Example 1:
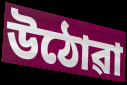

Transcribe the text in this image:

উঠোৱা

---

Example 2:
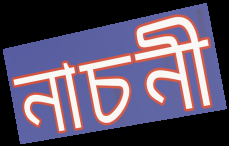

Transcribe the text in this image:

নাচনী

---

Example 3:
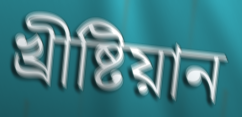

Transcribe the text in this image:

খ্ৰীষ্টিয়ান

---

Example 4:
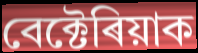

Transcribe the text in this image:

বেক্টেৰিয়াক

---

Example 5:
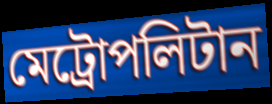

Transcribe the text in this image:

মেট্ৰোপলিটান